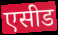
एसीड